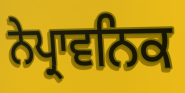
ਨੇਪ੍ਰਾਵਨਿਕ